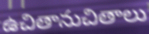
ఉచితానుచితాలు